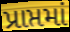
પ્રાપ્તમાં